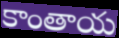
కాంతాయ